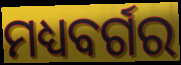
ମଧ୍ୟବର୍ଗର